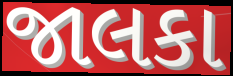
જાલકા